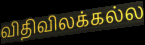
விதிவிலக்கல்ல